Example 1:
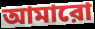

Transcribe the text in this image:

আমারো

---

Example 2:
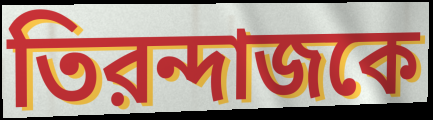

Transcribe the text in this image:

তিরন্দাজকে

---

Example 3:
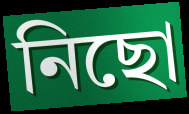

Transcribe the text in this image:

নিছো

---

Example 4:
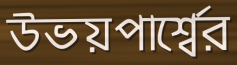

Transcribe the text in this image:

উভয়পার্শ্বের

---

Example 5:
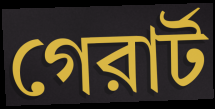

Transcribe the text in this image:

গেরার্ট